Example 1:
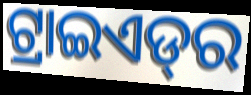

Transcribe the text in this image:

ଟ୍ରାଇଏଡ୍‌ର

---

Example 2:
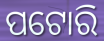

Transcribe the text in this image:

ପଟୋରି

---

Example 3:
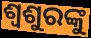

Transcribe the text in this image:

ଶ୍ୱଶୁରଙ୍କୁ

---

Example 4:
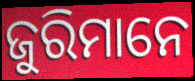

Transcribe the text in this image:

ଜୁରିମାନେ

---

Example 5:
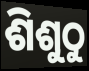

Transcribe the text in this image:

ଶିଶୁଠୁ